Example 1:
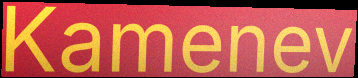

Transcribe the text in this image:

Kamenev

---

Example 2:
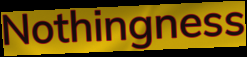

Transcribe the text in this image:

Nothingness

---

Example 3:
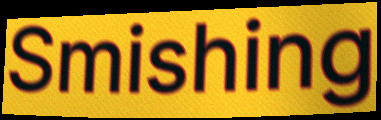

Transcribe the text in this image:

Smishing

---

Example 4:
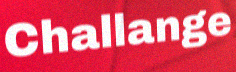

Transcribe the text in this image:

Challange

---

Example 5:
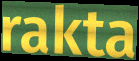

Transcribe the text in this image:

rakta